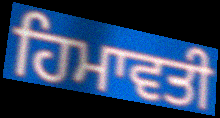
ਹਿਮਾਵਤੀ